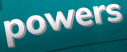
powers